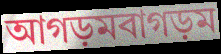
আগড়মবাগড়ম